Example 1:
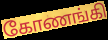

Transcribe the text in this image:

கோணங்கி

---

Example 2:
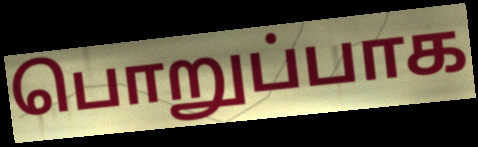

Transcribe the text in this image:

பொறுப்பாக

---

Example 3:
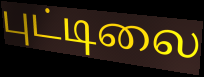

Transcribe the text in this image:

புட்டிலை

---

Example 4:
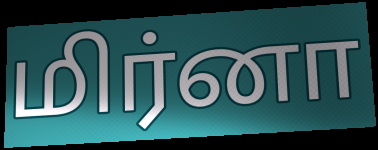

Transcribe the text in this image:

மிர்னா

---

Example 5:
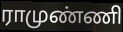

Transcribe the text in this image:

ராமுண்ணி